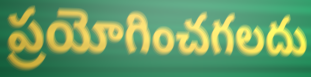
ప్రయోగించగలదు